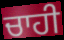
ਚਾਹੀ